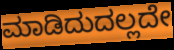
ಮಾಡಿದುದಲ್ಲದೇ